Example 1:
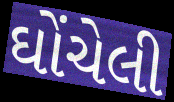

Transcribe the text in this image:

ઘોંચેલી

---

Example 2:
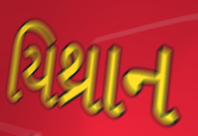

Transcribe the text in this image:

યિથ્રાન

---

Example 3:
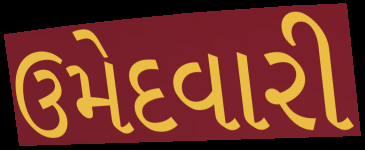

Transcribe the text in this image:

ઉમેદવારી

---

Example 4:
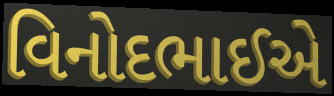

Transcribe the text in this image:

વિનોદભાઈએ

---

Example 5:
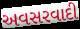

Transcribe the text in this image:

અવસરવાદી